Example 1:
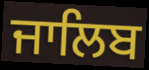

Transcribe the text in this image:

ਜਾਲਿਬ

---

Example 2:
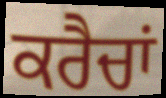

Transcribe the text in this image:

ਕਰੈਚਾਂ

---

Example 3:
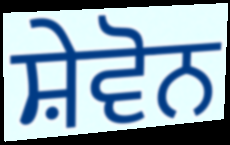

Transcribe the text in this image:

ਸ਼ੇਵੋਨ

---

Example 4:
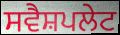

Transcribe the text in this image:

ਸਵੈਸ਼ਪਲੇਟ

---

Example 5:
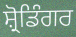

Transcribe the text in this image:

ਸ਼੍ਰੋਡਿੰਗਰ